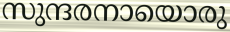
സുന്ദരനായൊരു